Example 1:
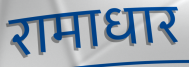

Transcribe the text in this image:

रामाधार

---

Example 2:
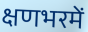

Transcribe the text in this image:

क्षणभरमें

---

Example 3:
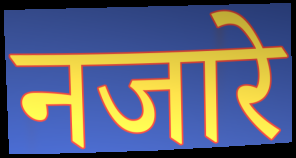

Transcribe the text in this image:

नजारे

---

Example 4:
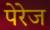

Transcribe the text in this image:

पेरेज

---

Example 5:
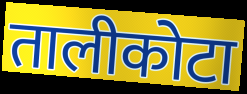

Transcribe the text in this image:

तालीकोटा